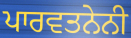
ਪਾਰਵਤਨੇਨੀ